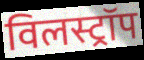
विलस्ट्रॉप